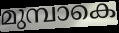
മുമ്പാകെ